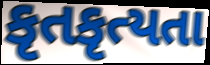
કૃતકૃત્યતા